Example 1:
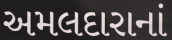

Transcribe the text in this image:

અમલદારાનાં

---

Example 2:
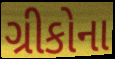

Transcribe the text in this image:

ગ્રીકોના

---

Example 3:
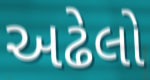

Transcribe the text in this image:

અઢેલો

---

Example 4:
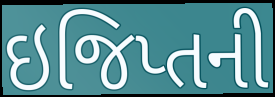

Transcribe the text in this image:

ઇજિપ્તની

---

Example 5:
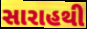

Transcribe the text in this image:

સારાહથી